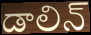
డాలిన్